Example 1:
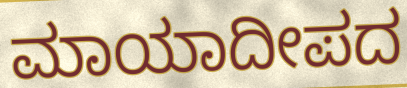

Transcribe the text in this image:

ಮಾಯಾದೀಪದ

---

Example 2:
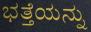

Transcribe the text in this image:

ಭತ್ತೆಯನ್ನು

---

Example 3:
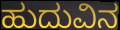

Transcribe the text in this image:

ಹುದುವಿನ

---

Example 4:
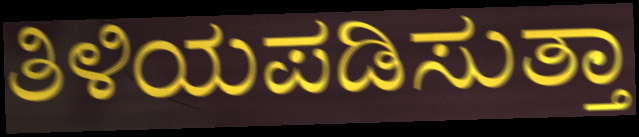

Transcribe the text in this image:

ತಿಳಿಯಪಡಿಸುತ್ತಾ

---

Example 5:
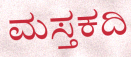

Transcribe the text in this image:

ಮಸ್ತಕದಿ